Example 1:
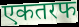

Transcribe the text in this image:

एकतरफ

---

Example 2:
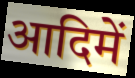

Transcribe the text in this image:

आदिमें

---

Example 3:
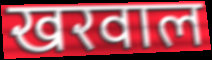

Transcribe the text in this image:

खरवाल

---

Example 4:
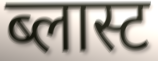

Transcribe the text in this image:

ब्लास्ट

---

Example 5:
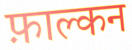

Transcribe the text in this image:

फ़ाल्कन